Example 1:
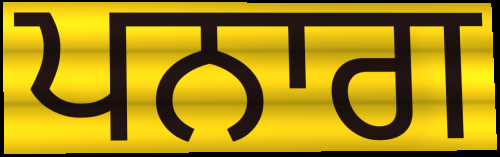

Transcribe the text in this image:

ਪਨਾਗ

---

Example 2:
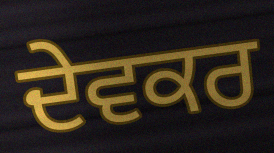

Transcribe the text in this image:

ਦੇਵਕਰ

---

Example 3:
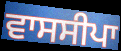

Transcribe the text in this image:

ਵਾਸਸੀਪਾ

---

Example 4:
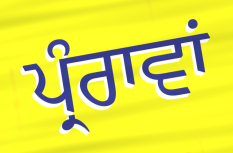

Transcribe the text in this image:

ਪ੍ਰੰਰਾਵਾਂ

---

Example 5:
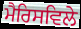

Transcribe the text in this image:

ਮੈਰਿਸਵਿਲੇ